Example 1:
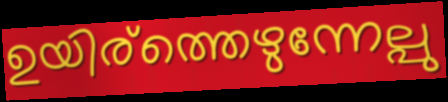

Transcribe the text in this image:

ഉയിര്ത്തെഴുന്നേല്പു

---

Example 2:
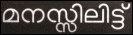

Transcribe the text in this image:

മനസ്സിലിട്ട്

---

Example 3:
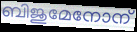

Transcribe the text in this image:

ബിജുമേനോന്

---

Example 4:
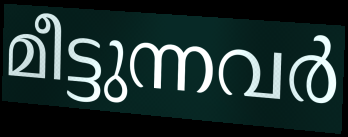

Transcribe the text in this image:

മീട്ടുന്നവർ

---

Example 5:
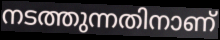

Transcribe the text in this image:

നടത്തുന്നതിനാണ്